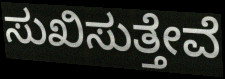
ಸುಖಿಸುತ್ತೇವೆ